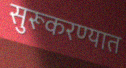
सुरूकरण्यात